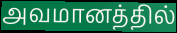
அவமானத்தில்